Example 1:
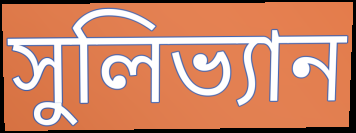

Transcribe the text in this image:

সুলিভ্যান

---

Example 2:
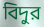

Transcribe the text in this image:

বিদুর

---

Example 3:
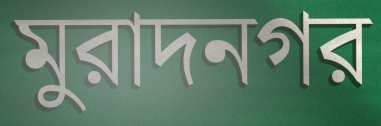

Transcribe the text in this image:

মুরাদনগর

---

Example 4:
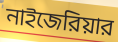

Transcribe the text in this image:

নাইজেরিয়ার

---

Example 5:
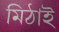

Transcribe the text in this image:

মিঠাই